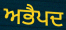
ਅਭੈਪਦ